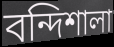
বন্দিশালা